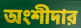
অংশীদার